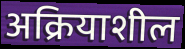
अक्रियाशील